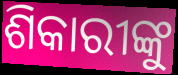
ଶିକାରୀଙ୍କୁ